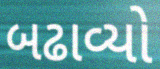
બઢાવ્યો